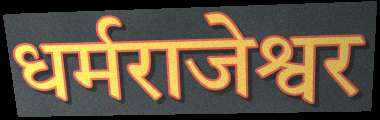
धर्मराजेश्वर